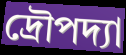
দ্রৌপদ্যা